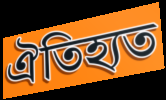
ঐতিহ্যত